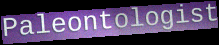
Paleontologist